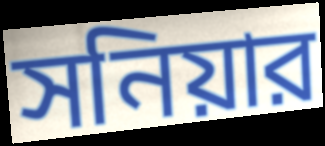
সনিয়ার